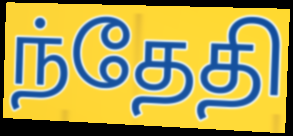
ந்தேதி